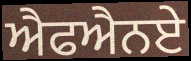
ਐਫਐਨਏ